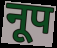
नूप